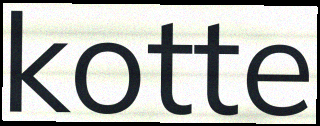
kotte